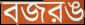
বজরঙ